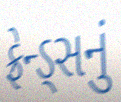
ફ્રેન્ડ્સનું